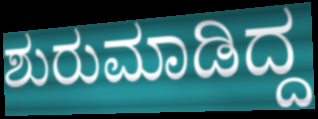
ಶುರುಮಾಡಿದ್ದ